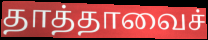
தாத்தாவைச்